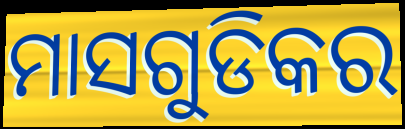
ମାସଗୁଡିକର